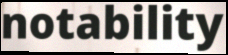
notability